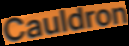
Cauldron